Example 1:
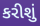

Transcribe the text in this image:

કરીશું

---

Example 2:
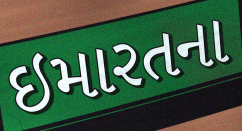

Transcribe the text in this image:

ઇમારતના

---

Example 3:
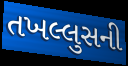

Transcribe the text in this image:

તખલ્લુસની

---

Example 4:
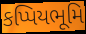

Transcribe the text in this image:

કપ્પિયભૂમિ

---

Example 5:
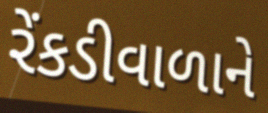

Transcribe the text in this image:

રેંકડીવાળાને